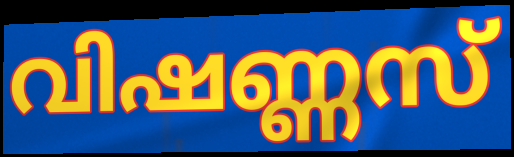
വിഷണ്ണസ്